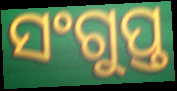
ସଂଗୁପ୍ତ